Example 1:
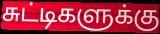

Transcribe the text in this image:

சுட்டிகளுக்கு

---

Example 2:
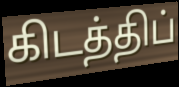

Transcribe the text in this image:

கிடத்திப்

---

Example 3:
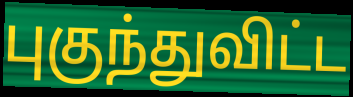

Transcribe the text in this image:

புகுந்துவிட்ட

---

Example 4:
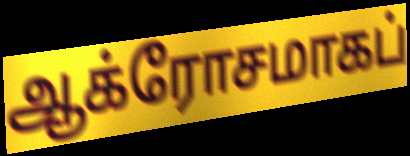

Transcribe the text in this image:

ஆக்ரோசமாகப்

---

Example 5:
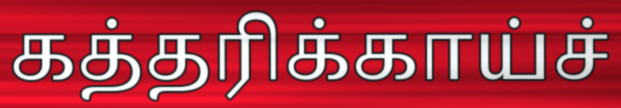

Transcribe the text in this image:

கத்தரிக்காய்ச்